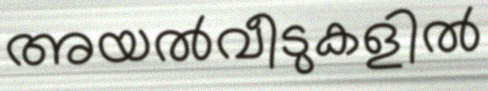
അയൽവീടുകളിൽ